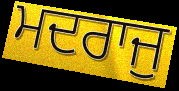
ਮਦਰਾਜੁ